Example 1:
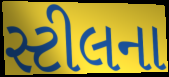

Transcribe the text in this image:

સ્ટીલના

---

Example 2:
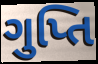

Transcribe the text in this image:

ગુપ્તિ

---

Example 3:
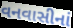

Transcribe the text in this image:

વનવાસીનાં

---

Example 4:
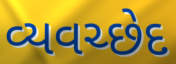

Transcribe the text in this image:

વ્યવચ્છેદ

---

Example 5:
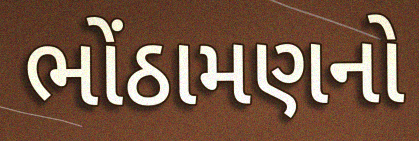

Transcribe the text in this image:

ભોંઠામણનો